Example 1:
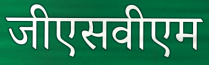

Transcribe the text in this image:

जीएसवीएम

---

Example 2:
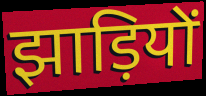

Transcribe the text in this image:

झाड़ियों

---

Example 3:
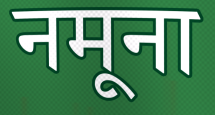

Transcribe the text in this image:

नमूना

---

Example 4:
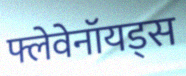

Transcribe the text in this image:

फ्लेवेनॉयड्स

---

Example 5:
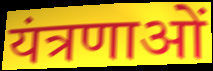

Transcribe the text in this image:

यंत्रणाओं